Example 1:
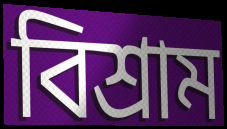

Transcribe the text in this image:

বিশ্ৰাম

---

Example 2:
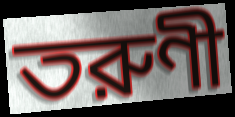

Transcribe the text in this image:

তৰুণী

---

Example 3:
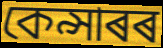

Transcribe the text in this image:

কেন্সাৰৰ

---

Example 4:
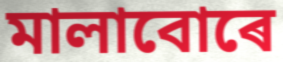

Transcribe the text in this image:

মালাবোৰে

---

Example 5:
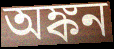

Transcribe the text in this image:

অঙ্কন